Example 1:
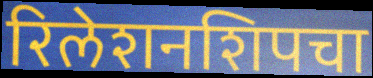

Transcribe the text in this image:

रिलेशनशिपचा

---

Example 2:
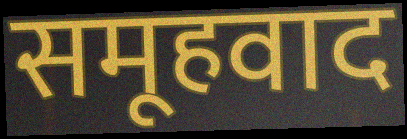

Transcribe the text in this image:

समूहवाद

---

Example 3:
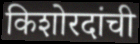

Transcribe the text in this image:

किशोरदांची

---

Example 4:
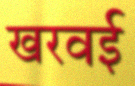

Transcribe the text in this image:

खरवई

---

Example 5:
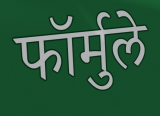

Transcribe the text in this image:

फॉर्मुले